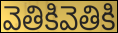
వెతికివెతికి